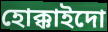
হোক্কাইদো